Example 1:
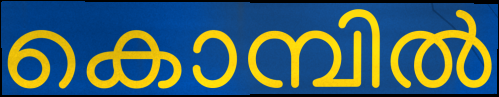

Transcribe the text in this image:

കൊമ്പിൽ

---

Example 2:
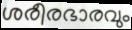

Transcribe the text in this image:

ശരീരഭാരവും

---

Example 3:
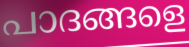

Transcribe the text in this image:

പാദങ്ങളെ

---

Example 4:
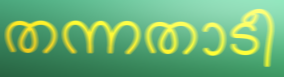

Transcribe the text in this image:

തന്നതാടീ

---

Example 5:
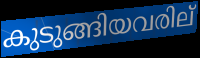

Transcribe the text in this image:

കുടുങ്ങിയവരില്